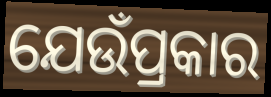
ଯେଉଁପ୍ରକାର